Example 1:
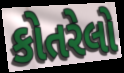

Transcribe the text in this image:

કોતરેલો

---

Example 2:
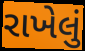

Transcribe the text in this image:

રાખેલું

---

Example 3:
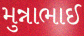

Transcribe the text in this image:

મુન્નાભાઈ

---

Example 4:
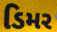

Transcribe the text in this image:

ડિમર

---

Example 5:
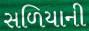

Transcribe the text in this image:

સળિયાની